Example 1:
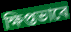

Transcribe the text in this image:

ক্ষিপ্তভাবে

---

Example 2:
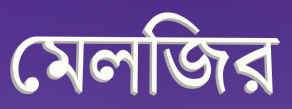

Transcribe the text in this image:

মেলজির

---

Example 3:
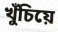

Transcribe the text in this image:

খুঁচিয়ে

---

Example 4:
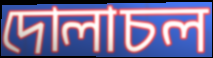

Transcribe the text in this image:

দোলাচল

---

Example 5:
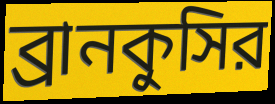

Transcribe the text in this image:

ব্রানকুসির